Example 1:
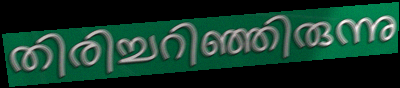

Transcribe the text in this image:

തിരിച്ചറിഞ്ഞിരുന്നു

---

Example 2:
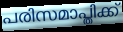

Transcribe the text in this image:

പരിസമാപ്തിക്ക്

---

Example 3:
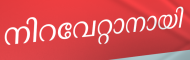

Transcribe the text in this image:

നിറവേറ്റാനായി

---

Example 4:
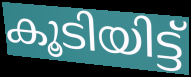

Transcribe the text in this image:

കൂടിയിട്ട്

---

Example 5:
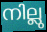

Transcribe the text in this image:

നില്ലു